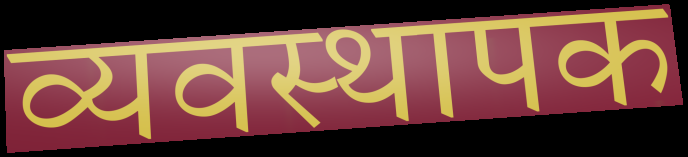
व्यवस्थापक